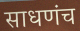
साधणंच